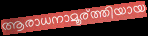
ആരാധനാമൂര്ത്തിയായ